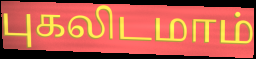
புகலிடமாம்